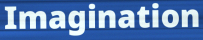
Imagination